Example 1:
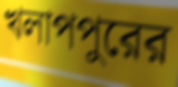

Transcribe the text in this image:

খলাপপুরের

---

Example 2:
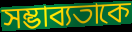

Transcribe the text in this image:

সম্ভাব্যতাকে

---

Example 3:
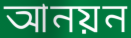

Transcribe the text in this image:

আনয়ন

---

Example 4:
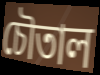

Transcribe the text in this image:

চৌতাল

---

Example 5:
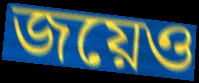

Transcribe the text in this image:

জয়েও